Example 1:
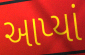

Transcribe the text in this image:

આપ્યાં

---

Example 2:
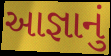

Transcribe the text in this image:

આજ્ઞાનું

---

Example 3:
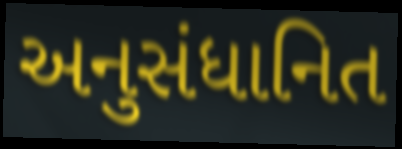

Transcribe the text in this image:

અનુસંધાનિત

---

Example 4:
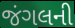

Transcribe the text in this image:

જંગલની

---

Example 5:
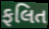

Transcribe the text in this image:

ફલિત